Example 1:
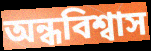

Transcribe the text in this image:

অন্ধবিশ্বাস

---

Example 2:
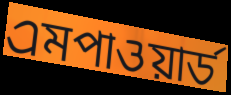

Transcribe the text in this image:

এমপাওয়ার্ড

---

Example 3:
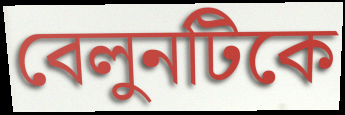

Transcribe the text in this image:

বেলুনটিকে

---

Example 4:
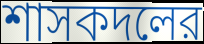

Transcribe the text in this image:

শাসকদলের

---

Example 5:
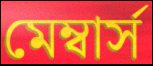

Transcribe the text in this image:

মেম্বার্স